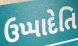
ઉપ્પાદેતિ